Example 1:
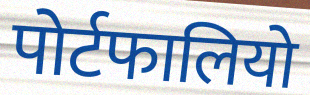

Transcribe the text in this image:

पोर्टफालियो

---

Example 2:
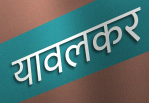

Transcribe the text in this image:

यावलकर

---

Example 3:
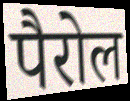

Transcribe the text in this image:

पैरोल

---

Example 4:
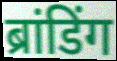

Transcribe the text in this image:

ब्रांडिंग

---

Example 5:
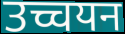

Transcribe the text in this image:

उच्चयन